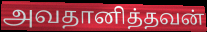
அவதானித்தவன்